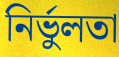
নির্ভুলতা